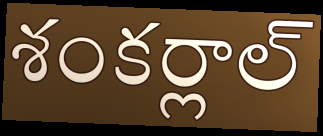
శంకర్లాల్